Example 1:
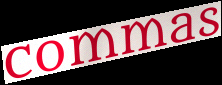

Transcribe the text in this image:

commas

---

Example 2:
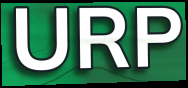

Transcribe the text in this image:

URP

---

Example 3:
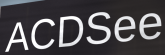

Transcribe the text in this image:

ACDSee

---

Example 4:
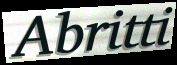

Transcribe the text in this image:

Abritti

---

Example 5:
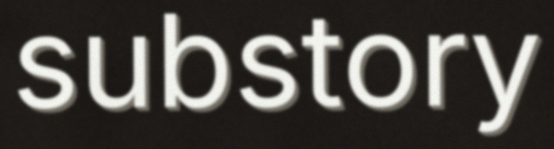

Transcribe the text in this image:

substory